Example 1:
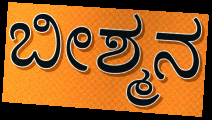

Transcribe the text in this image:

ಬೀಶ್ಮನ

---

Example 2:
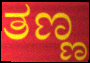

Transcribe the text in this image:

ತಣ್ಣ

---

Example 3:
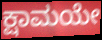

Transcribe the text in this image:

ಕ್ಷಾಮಯೇ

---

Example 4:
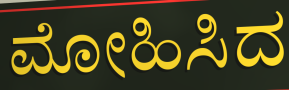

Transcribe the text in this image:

ಮೋಹಿಸಿದ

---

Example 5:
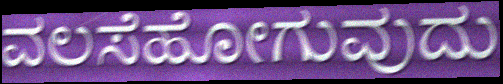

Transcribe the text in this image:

ವಲಸೆಹೋಗುವುದು